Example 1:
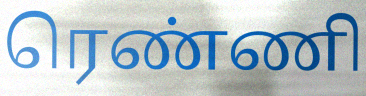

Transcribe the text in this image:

ரெண்ணி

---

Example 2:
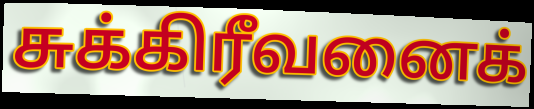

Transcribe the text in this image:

சுக்கிரீவனைக்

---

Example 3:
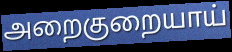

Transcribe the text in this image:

அறைகுறையாய்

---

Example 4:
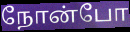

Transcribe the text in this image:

நோன்போ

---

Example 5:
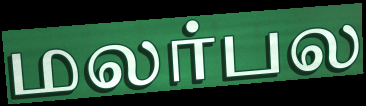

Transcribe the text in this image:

மலர்பல